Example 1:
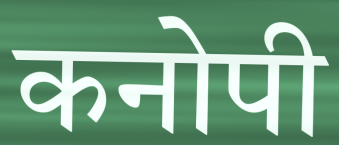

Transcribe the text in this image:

कनोपी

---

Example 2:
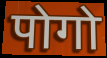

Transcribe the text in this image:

पोगो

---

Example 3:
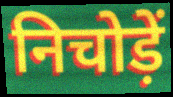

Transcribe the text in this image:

निचोड़ें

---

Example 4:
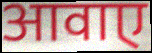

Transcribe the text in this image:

आवाए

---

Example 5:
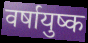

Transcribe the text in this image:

वर्षायुष्क